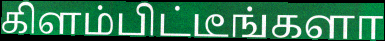
கிளம்பிட்டீங்களா